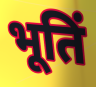
भूतिं